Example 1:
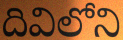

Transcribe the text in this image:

దివిలోని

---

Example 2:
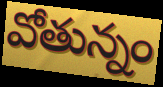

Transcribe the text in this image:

వోతున్నం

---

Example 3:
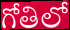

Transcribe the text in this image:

గోతిలో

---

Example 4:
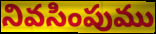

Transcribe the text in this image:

నివసింపుము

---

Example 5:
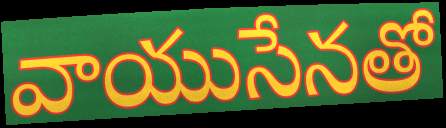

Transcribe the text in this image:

వాయుసేనతో